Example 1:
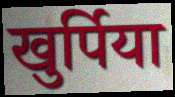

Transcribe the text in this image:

खुर्पिया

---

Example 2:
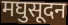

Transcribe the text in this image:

मघुसूदन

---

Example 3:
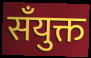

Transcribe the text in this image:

सँयुक्त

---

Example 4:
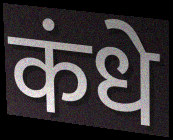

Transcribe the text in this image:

कंधे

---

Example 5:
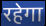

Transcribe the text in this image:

रहेगा